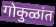
गोकुळांत